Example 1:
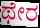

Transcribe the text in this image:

ಥೇರ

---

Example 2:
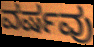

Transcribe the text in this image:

ವರ್ಷವು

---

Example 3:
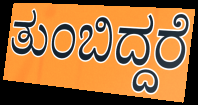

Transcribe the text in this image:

ತುಂಬಿದ್ದರೆ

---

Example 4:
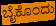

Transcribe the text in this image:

ಬೈಕೊಂದು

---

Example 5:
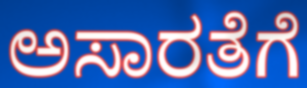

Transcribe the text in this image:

ಅಸಾರತೆಗೆ